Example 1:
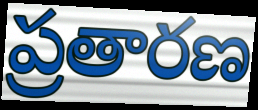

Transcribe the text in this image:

ప్రతారణ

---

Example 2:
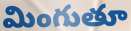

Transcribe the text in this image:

మింగుతూ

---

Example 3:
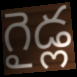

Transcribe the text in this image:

గైడ్ల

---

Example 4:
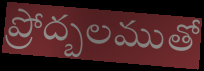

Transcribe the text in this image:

ప్రోద్బలముతో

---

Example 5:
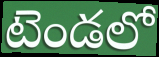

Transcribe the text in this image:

టెండలో